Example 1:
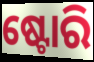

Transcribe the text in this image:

ଷ୍ଟୋରି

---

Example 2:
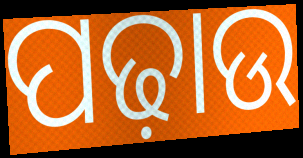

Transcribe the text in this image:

ପଢ଼ାଉ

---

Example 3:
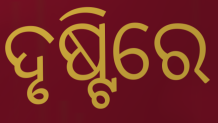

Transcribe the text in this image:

ଦୃଷ୍ଟିରେ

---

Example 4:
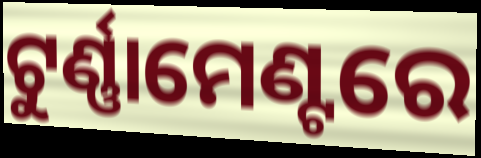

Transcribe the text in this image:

ଟୁର୍ଣ୍ଣାମେଣ୍ଟରେ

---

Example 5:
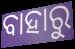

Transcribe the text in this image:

ବାହାରୁ